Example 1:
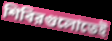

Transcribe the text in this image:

শিবিরগুলোতেই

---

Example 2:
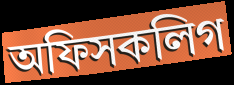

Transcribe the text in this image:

অফিসকলিগ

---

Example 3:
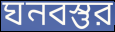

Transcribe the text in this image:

ঘনবস্তুর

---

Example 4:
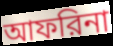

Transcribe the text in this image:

আফরিনা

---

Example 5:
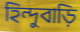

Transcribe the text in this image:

হিন্দুবাড়ি